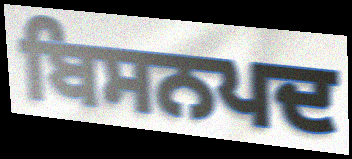
ਬਿਸਨਪਦ